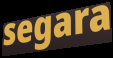
segara